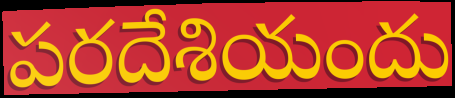
పరదేశియందు